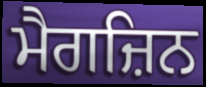
ਮੈਗਜ਼ਿਨ